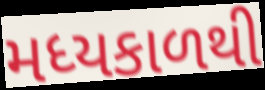
મધ્યકાળથી